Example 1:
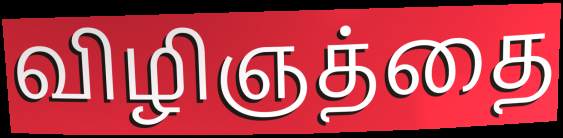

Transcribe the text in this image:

விழிஞத்தை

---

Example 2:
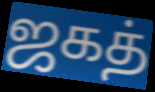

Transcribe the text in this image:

ஜகத்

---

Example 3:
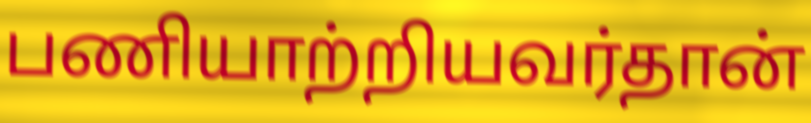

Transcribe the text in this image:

பணியாற்றியவர்தான்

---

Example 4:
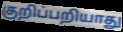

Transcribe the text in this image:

குறிப்பறியாது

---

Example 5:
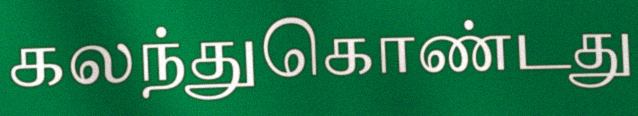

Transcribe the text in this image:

கலந்துகொண்டது